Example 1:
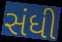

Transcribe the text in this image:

સંધી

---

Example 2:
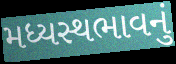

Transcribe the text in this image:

મધ્યસ્થભાવનું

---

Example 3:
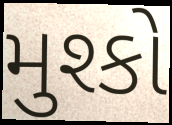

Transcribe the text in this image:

મુશ્કો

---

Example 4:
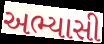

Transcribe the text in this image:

અભ્યાસી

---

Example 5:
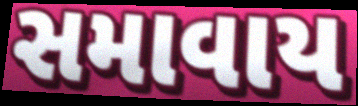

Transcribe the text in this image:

સમાવાય